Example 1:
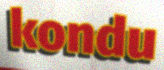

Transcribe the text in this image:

kondu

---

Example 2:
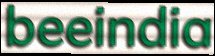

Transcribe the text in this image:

beeindia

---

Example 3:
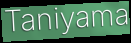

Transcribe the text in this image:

Taniyama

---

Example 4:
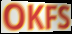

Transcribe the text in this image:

OKFS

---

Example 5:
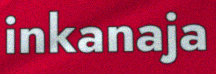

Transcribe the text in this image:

inkanaja